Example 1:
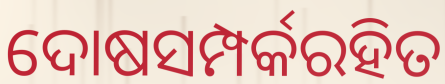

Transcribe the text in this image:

ଦୋଷସମ୍ପର୍କରହିତ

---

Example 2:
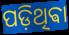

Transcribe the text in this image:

ପଡ଼ିଥିଵା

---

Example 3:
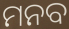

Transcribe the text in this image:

ମନବ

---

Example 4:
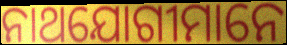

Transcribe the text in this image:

ନାଥଯୋଗୀମାନେ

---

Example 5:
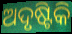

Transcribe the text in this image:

ଅଦୃଷ୍ଟିକି